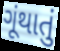
ગૂંથાતું